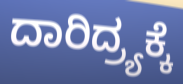
ದಾರಿದ್ರ್ಯಕ್ಕೆ